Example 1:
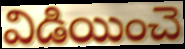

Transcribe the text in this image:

విడియించె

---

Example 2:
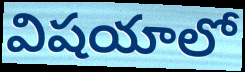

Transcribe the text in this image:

విషయాలో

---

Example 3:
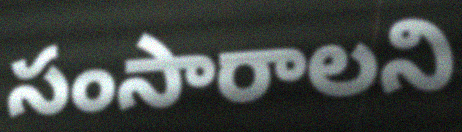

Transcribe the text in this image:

సంసారాలని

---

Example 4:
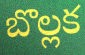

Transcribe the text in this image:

బొల్లక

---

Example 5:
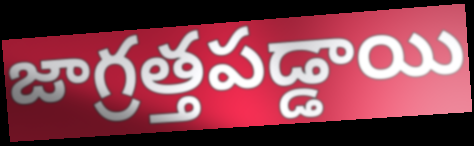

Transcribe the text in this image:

జాగ్రత్తపడ్డాయి